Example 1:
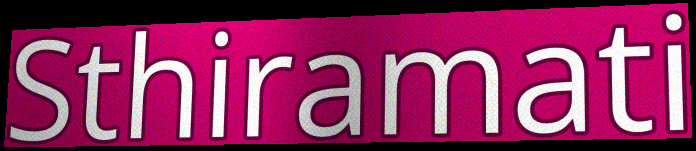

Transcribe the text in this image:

Sthiramati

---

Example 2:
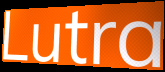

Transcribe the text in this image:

Lutra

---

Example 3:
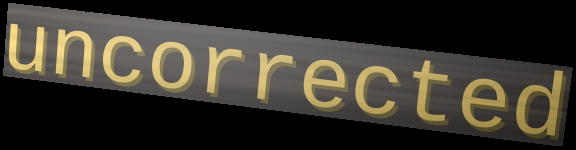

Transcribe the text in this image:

uncorrected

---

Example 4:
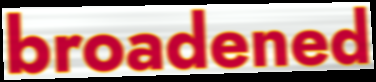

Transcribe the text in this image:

broadened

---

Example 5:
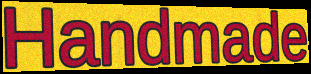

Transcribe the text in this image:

Handmade